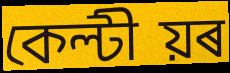
কেল্টীয়ৰ